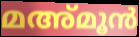
മഅ്മൂൻ